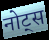
नोट्‌स